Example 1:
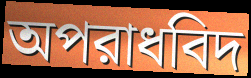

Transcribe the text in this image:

অপরাধবিদ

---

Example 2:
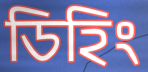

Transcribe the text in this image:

ডিহিং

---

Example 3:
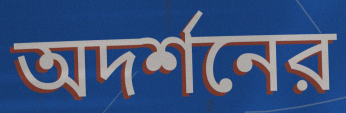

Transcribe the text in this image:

অদর্শনের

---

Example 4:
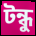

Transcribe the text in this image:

টন্ধু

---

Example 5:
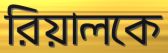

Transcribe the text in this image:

রিয়ালকে